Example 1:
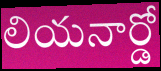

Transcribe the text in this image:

లియనార్డో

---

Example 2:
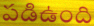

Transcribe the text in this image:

పడిఉంది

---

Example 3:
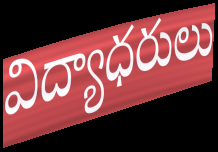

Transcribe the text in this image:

విద్యాధరులు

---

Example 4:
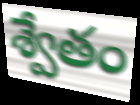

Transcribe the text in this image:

శ్వేతం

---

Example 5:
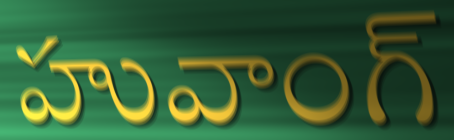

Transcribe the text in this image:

హువాంగ్